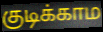
குடிக்காம